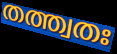
തത്ത്വതഃ